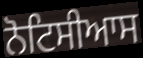
ਨੋਟਿਸੀਆਸ